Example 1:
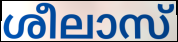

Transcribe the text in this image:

ശീലാസ്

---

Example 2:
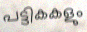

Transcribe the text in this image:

പട്ടികകളും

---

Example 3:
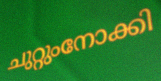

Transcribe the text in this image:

ചുറ്റുംനോക്കി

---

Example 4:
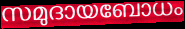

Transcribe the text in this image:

സമുദായബോധം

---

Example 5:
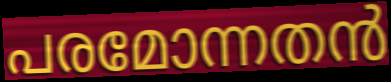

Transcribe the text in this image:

പരമോന്നതൻ